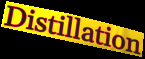
Distillation